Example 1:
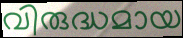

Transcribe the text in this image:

വിരുദ്ധമായ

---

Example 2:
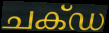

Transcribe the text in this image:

ചക്ഡ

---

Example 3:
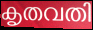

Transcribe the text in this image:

കൃതവതി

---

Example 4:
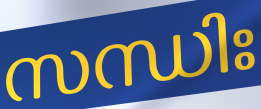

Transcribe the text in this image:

സന്ധിഃ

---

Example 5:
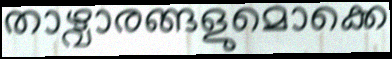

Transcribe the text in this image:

താഴ്വാരങ്ങളുമൊക്കെ